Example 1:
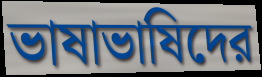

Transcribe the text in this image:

ভাষাভাষিদের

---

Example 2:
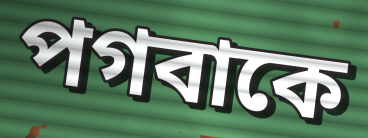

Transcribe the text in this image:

পগবাকে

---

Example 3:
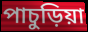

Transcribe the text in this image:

পাচুড়িয়া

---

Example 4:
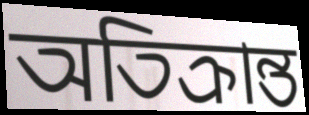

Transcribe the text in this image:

অতিক্রান্ত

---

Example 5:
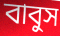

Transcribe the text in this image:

বাবুস